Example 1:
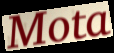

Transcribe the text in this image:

Mota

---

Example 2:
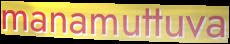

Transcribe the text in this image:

manamuttuva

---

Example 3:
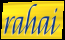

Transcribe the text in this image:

rahai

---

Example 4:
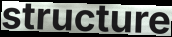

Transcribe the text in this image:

structure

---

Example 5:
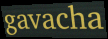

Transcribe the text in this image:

gavacha